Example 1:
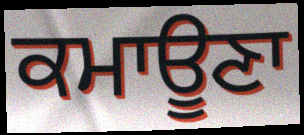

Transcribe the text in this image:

ਕਮਾਊਣਾ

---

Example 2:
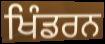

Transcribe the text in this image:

ਖਿੰਡਰਨ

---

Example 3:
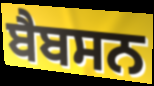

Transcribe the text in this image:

ਬੈਬਸਨ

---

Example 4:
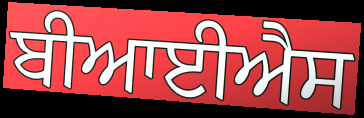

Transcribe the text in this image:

ਬੀਆਈਐਸ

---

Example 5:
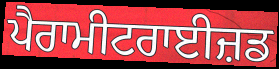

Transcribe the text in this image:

ਪੈਰਾਮੀਟਰਾਈਜ਼ਡ